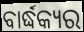
ବାର୍ଦ୍ଧକ୍ୟର